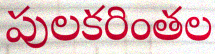
పులకరింతల